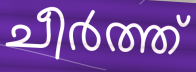
ചീർത്ത്